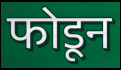
फोडून